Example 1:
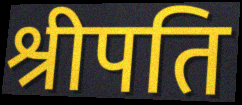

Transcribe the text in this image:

श्रीपति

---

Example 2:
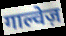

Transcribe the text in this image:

गाल्वेज़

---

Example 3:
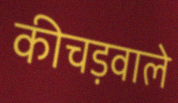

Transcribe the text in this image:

कीचड़वाले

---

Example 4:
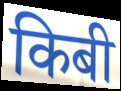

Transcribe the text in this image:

किबी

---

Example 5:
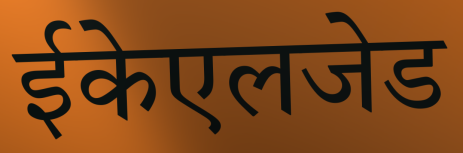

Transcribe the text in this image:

ईकेएलजेड